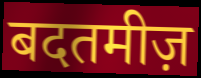
बदतमीज़